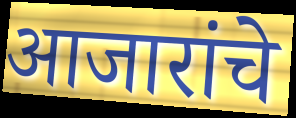
आजारांचे